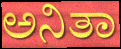
ಅನಿತಾ